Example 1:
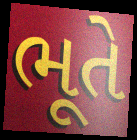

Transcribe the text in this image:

ભૂતે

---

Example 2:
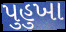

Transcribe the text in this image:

પુહુખા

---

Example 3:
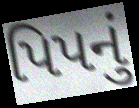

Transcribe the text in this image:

પિપનું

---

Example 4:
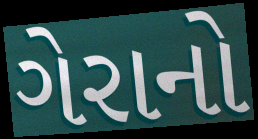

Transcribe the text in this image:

ગેરાનો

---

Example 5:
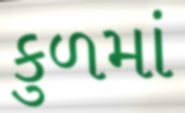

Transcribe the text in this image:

કુળમાં